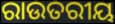
ରାଉତରୀୟ